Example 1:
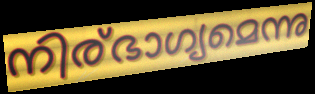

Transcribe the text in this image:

നിര്ഭാഗ്യമെന്നു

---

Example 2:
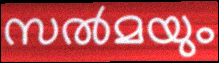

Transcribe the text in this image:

സൽമയും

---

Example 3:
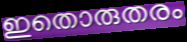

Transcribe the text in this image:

ഇതൊരുതരം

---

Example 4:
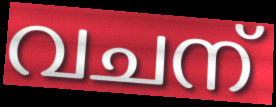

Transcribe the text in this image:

വചന്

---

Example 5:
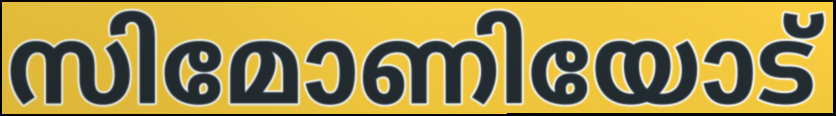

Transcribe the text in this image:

സിമോണിയോട്